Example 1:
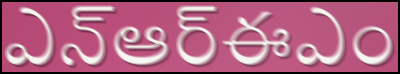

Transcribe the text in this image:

ఎన్ఆర్ఈఎం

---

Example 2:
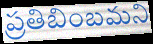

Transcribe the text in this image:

ప్రతిబింబమని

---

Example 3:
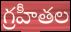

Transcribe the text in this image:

గ్రహీతల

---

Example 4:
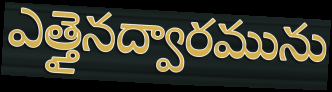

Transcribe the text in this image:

ఎత్తైనద్వారమును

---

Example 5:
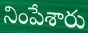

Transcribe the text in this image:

నింపేశారు